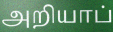
அறியாப்